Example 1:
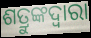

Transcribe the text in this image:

ଶତ୍ରୁଙ୍କଦ୍ୱାରା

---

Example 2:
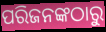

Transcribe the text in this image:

ପରିଜନଙ୍କଠାରୁ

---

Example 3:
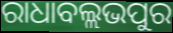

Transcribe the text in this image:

ରାଧାବଲ୍ଲଭପୁର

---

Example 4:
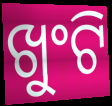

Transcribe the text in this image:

ଖୁଂଟି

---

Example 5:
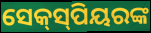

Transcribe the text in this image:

ସେକ୍‌ସ୍‌ପିୟରଙ୍କ